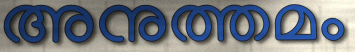
അനുത്തമം